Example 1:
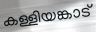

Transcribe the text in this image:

കള്ളിയങ്കാട്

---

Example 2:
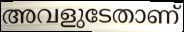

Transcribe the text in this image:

അവളുടേതാണ്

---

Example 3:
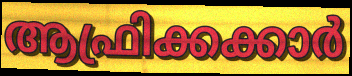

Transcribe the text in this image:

ആഫ്രിക്കക്കാർ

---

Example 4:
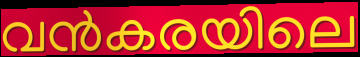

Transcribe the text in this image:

വൻകരയിലെ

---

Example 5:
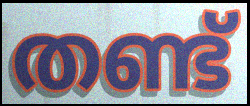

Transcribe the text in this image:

തണ്ട്